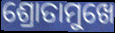
ଶ୍ରୋତାମୁଖେ